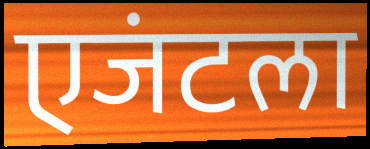
एजंटला